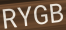
RYGB